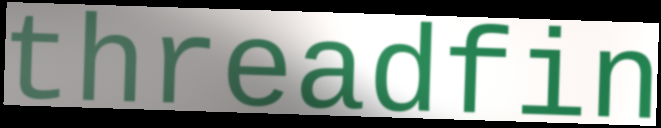
threadfin